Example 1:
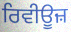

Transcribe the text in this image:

ਰਿਵੀਊਜ਼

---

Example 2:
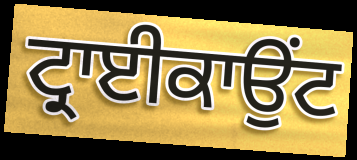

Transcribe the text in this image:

ਟ੍ਰਾਈਕਾਉਂਟ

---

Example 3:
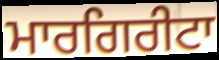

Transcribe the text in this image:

ਮਾਰਗਿਰੀਟਾ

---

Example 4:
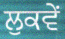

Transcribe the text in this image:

ਲੁਕਵੇਂ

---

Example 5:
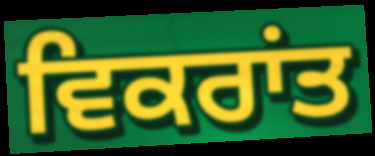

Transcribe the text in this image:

ਵਿਕਰਾਂਤ